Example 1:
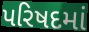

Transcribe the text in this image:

પરિષદમાં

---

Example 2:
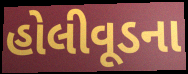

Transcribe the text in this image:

હોલીવૂડના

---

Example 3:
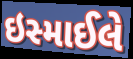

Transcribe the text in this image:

ઇસ્માઈલે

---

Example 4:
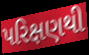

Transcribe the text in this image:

પરિક્ષણથી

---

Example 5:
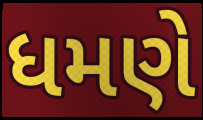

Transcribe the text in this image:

ધમણે